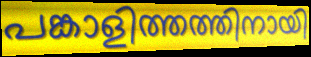
പങ്കാളിത്തത്തിനായി